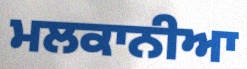
ਮਲਕਾਨੀਆ